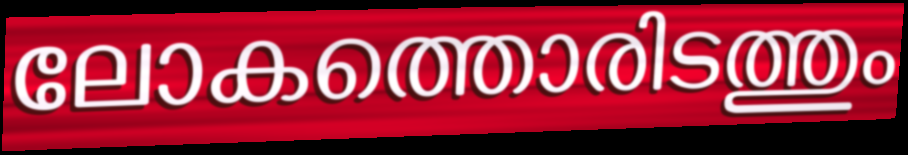
ലോകത്തൊരിടത്തും